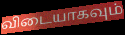
விடையாகவும்